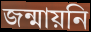
জন্মায়নি